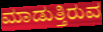
ಮಾಡುತ್ತಿರುವ